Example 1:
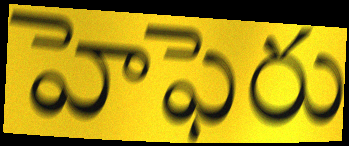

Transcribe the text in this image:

హెఫెరు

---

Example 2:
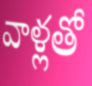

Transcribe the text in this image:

వాళ్లతో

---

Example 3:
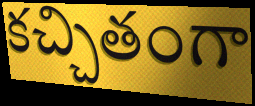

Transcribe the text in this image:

కచ్చితంగా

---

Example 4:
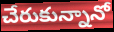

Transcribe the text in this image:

చేరుకున్నానో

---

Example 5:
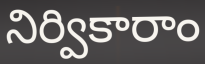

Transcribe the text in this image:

నిర్వికారాం